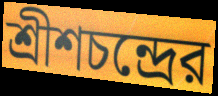
শ্রীশচন্দ্রের